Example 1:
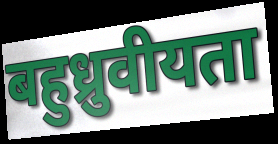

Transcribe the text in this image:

बहुध्रुवीयता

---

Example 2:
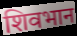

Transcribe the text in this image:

शिवभान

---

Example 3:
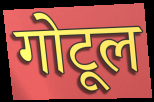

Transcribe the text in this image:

गोटूल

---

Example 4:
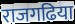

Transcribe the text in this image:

राजगढिया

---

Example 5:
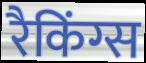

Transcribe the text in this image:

रैकिंग्स